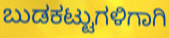
ಬುಡಕಟ್ಟುಗಳಿಗಾಗಿ